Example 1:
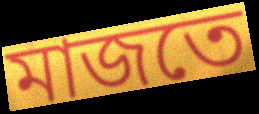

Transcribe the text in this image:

মাজতে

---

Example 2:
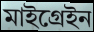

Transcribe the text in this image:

মাইগ্ৰেইন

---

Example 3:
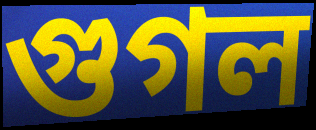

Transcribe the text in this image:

গুগল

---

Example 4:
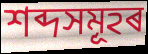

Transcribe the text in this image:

শব্দসমূহৰ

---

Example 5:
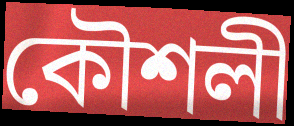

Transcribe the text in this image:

কৌশলী